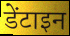
डेंटाइन